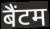
बैंटम